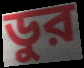
ডুর